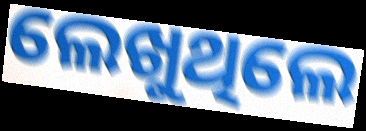
ଲେଖୁଥିଲେ